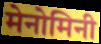
मेनोमिनी